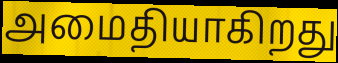
அமைதியாகிறது